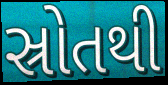
સ્રોતથી